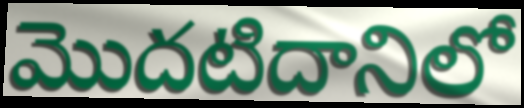
మొదటిదానిలో